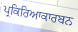
ਪ੍ਰਕਿਰਿਆਕਾਰਬਨ